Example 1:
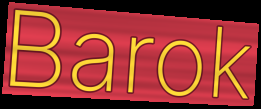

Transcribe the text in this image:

Barok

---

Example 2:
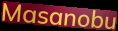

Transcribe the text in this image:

Masanobu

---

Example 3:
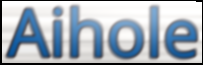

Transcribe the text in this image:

Aihole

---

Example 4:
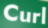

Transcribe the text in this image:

Curl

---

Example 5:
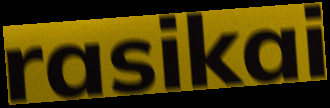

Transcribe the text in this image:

rasikai